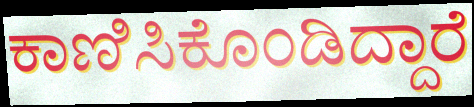
ಕಾಣಿಸಿಕೊಂಡಿದ್ದಾರೆ